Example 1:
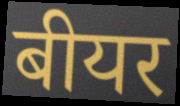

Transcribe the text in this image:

बीयर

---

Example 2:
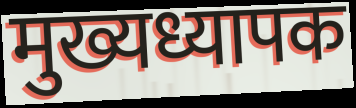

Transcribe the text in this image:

मुख्यध्यापक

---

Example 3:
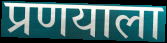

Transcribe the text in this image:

प्रणयाला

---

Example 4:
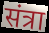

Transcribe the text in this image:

संत्रा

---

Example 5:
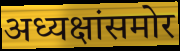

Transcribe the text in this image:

अध्यक्षांसमोर